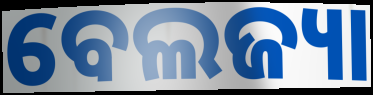
ବେଲଜ୍ୟା